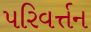
પરિવર્ત્તન